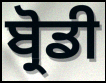
ਬ੍ਰੋਡੀ